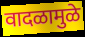
वादळामुळे